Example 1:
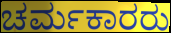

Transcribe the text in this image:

ಚರ್ಮಕಾರರು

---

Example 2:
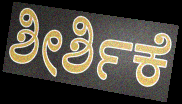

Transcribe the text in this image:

ಶೀರ್ಶಿಕೆ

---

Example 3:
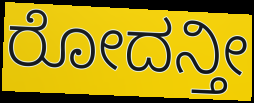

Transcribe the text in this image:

ರೋದನ್ತೀ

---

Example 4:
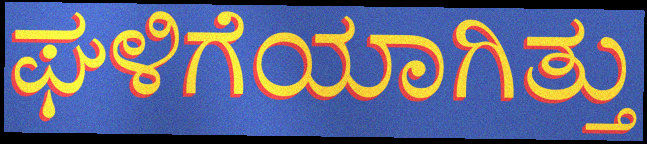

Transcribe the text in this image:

ಘಳಿಗೆಯಾಗಿತ್ತು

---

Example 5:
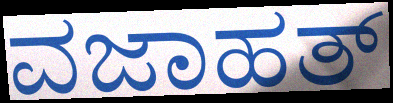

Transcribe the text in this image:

ವಜಾಹತ್